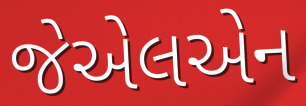
જેએલએન